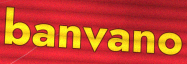
banvano